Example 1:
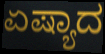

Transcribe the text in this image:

ಏಷ್ಯಾದ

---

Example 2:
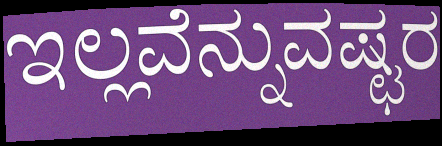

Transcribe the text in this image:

ಇಲ್ಲವೆನ್ನುವಷ್ಟರ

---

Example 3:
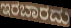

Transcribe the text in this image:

ಇರಬಾರದು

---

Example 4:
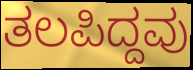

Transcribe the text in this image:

ತಲಪಿದ್ದವು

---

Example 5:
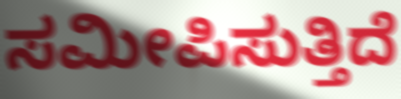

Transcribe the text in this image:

ಸಮೀಪಿಸುತ್ತಿದೆ